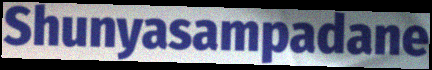
Shunyasampadane